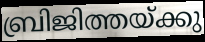
ബ്രിജിത്തയ്ക്കു